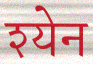
श्येन